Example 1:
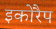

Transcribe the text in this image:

इकोरैप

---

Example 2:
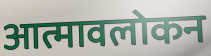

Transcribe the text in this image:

आत्‍मावलोकन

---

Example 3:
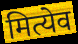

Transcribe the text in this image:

मित्येव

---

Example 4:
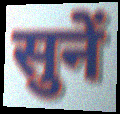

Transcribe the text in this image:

सुनें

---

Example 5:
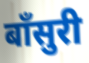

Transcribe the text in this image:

बॉंसुरी